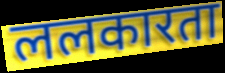
ललकारता